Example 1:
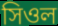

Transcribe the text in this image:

সিওল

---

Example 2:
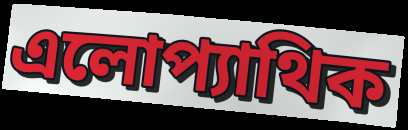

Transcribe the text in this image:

এলোপ্যাথিক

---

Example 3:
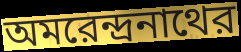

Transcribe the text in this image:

অমরেন্দ্রনাথের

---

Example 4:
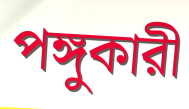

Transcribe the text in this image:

পঙ্গুকারী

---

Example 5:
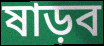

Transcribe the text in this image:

ষাড়ব